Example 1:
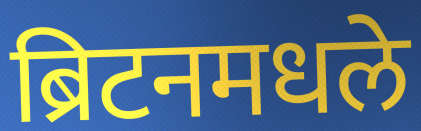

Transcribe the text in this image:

ब्रिटनमधले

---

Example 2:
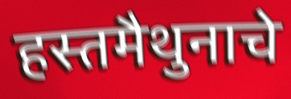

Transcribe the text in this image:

हस्तमैथुनाचे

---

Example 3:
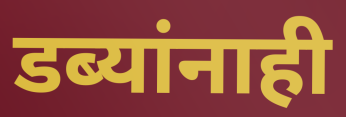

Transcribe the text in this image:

डब्यांनाही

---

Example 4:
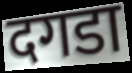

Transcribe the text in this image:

दगडा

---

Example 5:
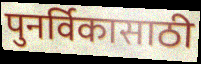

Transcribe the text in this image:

पुनर्विकासाठी